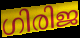
ഗിരിജ